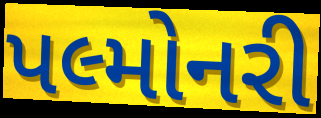
પલ્મોનરી